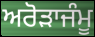
ਅਰੋੜਾਜੰਮੂ